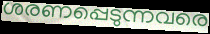
ശരണപ്പെടുന്നവരെ